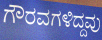
ಗೌರವಗಳಿದ್ದವು